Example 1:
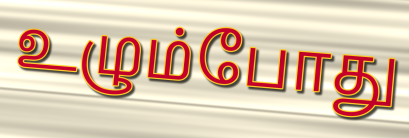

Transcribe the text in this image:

உழும்போது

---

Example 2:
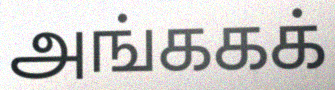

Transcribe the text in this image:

அங்ககக்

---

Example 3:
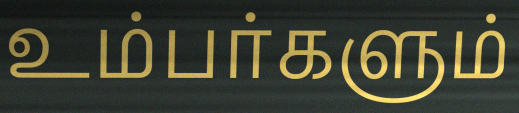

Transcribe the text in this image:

உம்பர்களும்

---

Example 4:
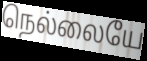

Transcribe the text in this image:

நெல்லையே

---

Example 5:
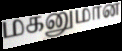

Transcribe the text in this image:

மகனுமான